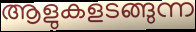
ആളുകളടങ്ങുന്ന